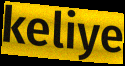
keliye